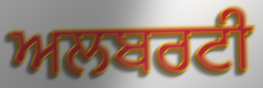
ਅਲਬਰਟੀ